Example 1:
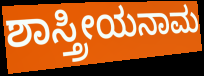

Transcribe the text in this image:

ಶಾಸ್ತ್ರೀಯನಾಮ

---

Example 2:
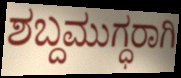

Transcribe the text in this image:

ಶಬ್ದಮುಗ್ಧರಾಗಿ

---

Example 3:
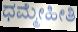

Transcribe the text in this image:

ಧಮ್ಮೇಹೀತಿ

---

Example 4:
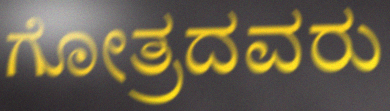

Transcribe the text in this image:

ಗೋತ್ರದವರು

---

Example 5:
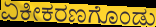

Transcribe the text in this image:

ಏಕೀಕರಣಗೊಂಡು